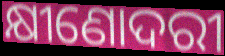
କ୍ଷୀଣୋଦରୀ